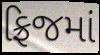
ફ્રિજમાં